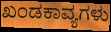
ಖಂಡಕಾವ್ಯಗಳು